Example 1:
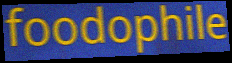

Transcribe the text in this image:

foodophile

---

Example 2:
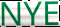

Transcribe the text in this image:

NYE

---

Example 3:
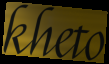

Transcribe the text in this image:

kheto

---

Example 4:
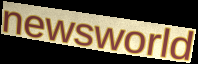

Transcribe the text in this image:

newsworld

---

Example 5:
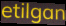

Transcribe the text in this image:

etilgan